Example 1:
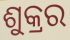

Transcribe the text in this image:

ଶୁକ୍ରର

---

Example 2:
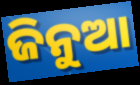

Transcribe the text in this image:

ଜିନୁଆ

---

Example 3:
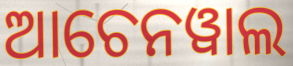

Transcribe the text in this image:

ଆଚେନୱାଲ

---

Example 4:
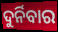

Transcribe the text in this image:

ଦୁର୍ନିବାର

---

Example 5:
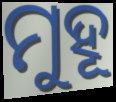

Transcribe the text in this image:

ମୁହୂ